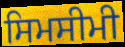
ਸਿਮਸੀਮੀ